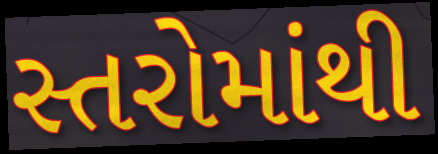
સ્તરોમાંથી